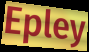
Epley